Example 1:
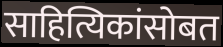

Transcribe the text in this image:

साहित्यिकांसोबत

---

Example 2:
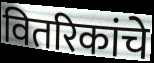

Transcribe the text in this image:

वितरिकांचे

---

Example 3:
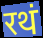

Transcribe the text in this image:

रथं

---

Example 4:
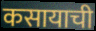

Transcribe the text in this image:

कसायाची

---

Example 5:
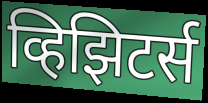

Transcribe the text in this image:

व्हिझिटर्स